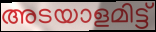
അടയാളമിട്ട്